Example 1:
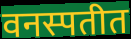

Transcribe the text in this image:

वनस्पतीत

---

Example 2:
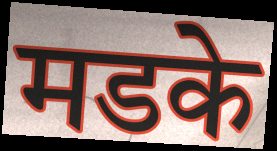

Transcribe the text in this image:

मडके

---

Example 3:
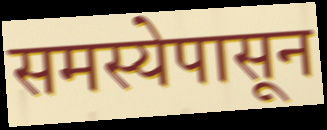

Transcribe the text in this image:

समस्येपासून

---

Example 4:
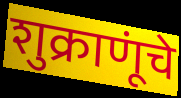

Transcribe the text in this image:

शुक्राणूंचे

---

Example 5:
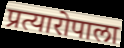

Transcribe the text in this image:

प्रत्यारोपाला